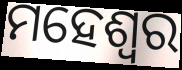
ମହେଶ୍ଵର